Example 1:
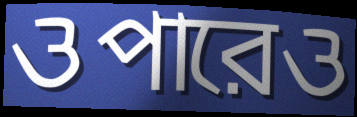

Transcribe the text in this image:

ওপারেও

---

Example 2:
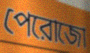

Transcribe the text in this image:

পেরোজো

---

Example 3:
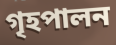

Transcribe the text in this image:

গৃহপালন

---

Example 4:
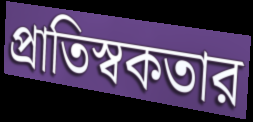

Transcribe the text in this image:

প্রাতিস্বকতার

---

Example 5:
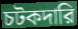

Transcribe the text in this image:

চটকদারি